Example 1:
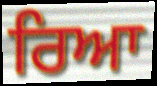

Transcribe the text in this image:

ਰਿਆ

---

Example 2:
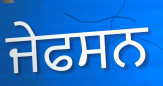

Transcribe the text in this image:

ਜੇਫਸਨ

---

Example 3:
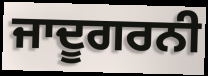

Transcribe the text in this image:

ਜਾਦੂਗਰਨੀ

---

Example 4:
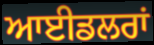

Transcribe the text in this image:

ਆਈਡਲਰਾਂ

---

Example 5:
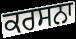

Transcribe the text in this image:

ਕਰਸਨਾ